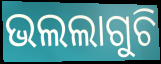
ଭଲଲାଗୁଚି